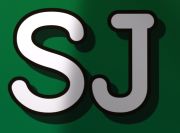
SJ